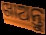
ଖାଅନ୍ତୁ